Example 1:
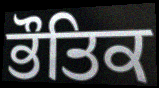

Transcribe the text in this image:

ਭੌਤਿਕ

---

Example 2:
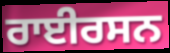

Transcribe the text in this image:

ਰਾਈਰਸਨ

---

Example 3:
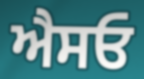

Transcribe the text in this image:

ਐਸਓ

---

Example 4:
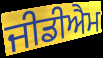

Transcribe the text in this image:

ਜੀਡੀਐਮ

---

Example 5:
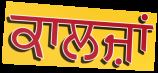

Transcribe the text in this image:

ਕਾਲਜ਼ਾਂ